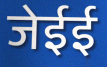
जेईई